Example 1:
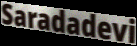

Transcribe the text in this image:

Saradadevi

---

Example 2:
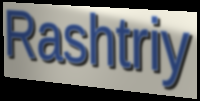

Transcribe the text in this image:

Rashtriy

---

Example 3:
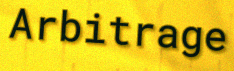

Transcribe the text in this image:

Arbitrage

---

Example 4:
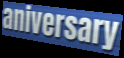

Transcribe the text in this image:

aniversary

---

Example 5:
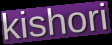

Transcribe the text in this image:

kishori